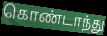
கொண்டாந்து